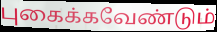
புகைக்கவேண்டும்